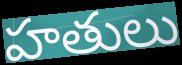
హతులు